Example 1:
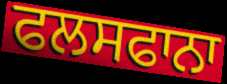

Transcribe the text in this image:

ਫਲਸਫਾਨਾ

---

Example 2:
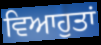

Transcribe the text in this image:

ਵਿਆਹੁਤਾਂ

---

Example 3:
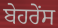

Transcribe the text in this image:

ਬੇਹਰੇਂਸ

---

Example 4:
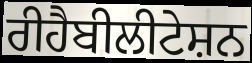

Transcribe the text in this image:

ਰੀਹੈਬੀਲੀਟੇਸ਼ਨ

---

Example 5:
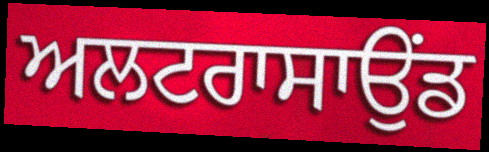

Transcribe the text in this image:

ਅਲਟਰਾਸਾਉਂਡ